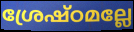
ശ്രേഷ്ഠമല്ലേ